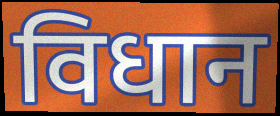
विधान